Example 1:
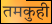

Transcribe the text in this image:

तमकुही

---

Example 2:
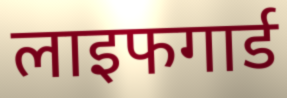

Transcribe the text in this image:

लाइफगार्ड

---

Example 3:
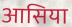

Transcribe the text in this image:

आसिया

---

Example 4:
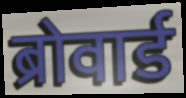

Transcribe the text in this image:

ब्रोवार्ड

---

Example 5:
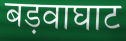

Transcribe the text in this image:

बड़वाघाट